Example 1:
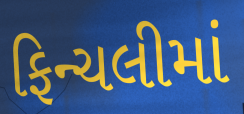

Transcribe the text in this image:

ફિન્ચલીમાં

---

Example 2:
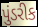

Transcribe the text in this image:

પુંડરીક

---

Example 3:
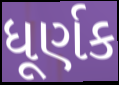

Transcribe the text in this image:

ધૂર્ણક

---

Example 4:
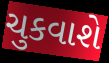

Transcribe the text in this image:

ચુકવાશે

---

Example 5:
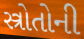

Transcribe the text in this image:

સ્ત્રોતોની